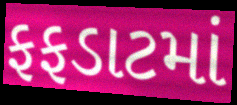
ફફડાટમાં